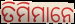
ତିମିମାନେ